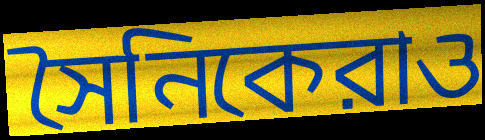
সৈনিকেরাও